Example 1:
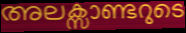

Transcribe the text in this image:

അലക്സാണ്ടറുടെ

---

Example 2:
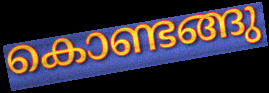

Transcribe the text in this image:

കൊണ്ടങ്ങു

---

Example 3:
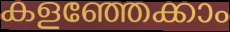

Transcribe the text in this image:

കളഞ്ഞേക്കാം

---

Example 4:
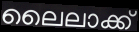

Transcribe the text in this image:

ലൈലാക്ക്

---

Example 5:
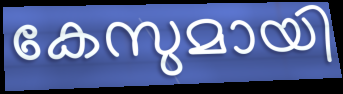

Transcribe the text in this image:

കേസുമായി